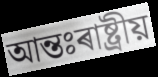
আন্তঃৰাষ্ট্ৰীয়